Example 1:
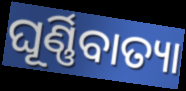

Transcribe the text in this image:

ଘୂର୍ଣ୍ଣିବାତ୍ୟା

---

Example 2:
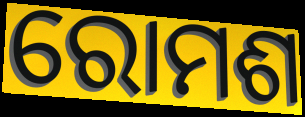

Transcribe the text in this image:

ରୋମଶ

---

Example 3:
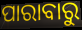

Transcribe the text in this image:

ପାରାବାରୁ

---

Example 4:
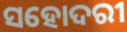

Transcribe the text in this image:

ସହୋଦରୀ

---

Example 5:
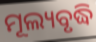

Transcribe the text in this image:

ମୂଲ୍ୟବୃଦ୍ଧି